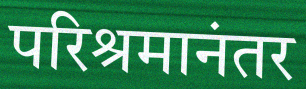
परिश्रमानंतर